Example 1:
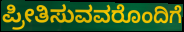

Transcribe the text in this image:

ಪ್ರೀತಿಸುವವರೊಂದಿಗೆ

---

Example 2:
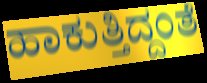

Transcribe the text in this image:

ಹಾಕುತ್ತಿದ್ದಂತೆ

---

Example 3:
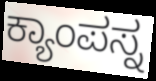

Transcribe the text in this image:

ಕ್ಯಾಂಪಸ್ನ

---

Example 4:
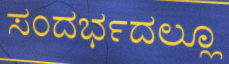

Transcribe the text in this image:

ಸಂದರ್ಭದಲ್ಲೂ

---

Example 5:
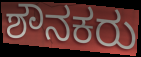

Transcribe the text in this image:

ಶೌನಕರು